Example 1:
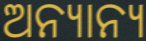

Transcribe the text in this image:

ଅନ୍ୟାନ୍ଯ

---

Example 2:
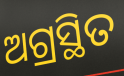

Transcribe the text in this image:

ଅଗ୍ରସ୍ଥିତ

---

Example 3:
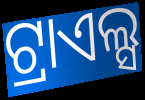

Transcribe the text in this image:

ଟ୍ରାଏଲ୍ସ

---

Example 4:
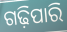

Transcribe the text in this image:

ଗଢ଼ିପାରି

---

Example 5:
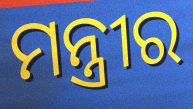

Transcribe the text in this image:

ମନ୍ତ୍ରୀର